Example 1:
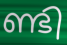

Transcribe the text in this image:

ണ്ടി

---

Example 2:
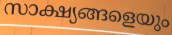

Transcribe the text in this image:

സാക്ഷ്യങ്ങളെയും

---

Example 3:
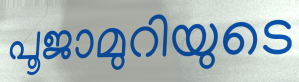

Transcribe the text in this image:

പൂജാമുറിയുടെ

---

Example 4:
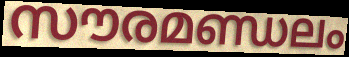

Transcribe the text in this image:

സൗരമണ്ഡലം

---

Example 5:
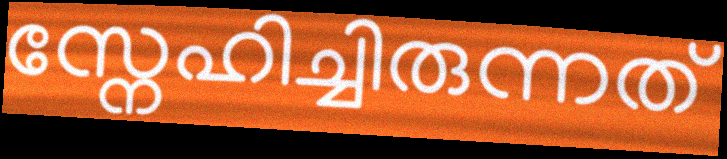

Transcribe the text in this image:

സ്നേഹിച്ചിരുന്നത്